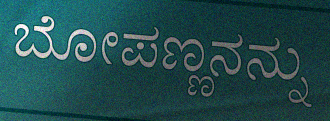
ಬೋಪಣ್ಣನನ್ನು